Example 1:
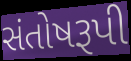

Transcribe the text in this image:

સંતોષરૂપી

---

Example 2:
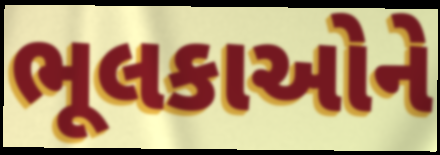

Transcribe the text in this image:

ભૂલકાઓને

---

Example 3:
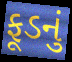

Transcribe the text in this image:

ફૂડનું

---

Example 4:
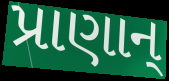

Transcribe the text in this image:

પ્રાણાન્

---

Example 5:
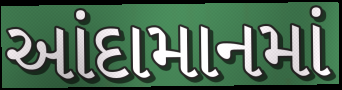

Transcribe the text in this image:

આંદામાનમાં